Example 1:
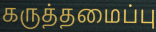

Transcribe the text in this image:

கருத்தமைப்பு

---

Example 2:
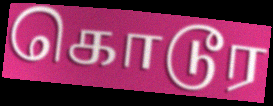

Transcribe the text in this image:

கொடூர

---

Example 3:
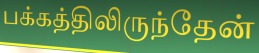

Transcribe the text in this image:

பக்கத்திலிருந்தேன்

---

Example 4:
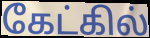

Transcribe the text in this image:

கேட்கில்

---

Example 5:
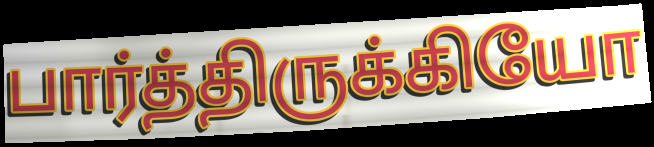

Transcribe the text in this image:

பார்த்திருக்கியோ